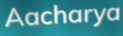
Aacharya